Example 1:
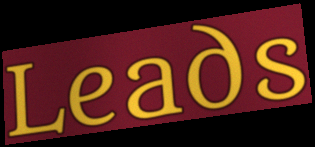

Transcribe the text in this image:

Leads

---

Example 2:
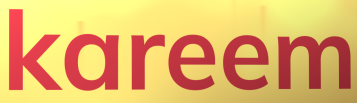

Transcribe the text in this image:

kareem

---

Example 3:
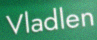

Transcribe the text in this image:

Vladlen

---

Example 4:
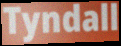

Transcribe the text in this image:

Tyndall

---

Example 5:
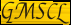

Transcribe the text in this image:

GMSCL